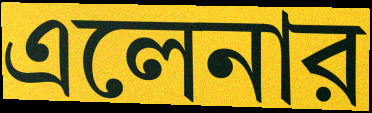
এলেনার